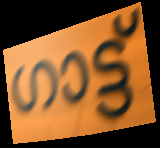
ഗാട്ട്